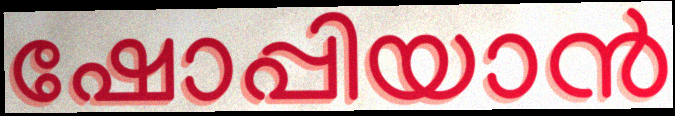
ഷോപ്പിയാൻ